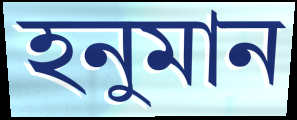
হনুমান